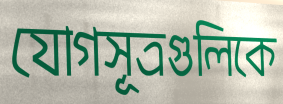
যোগসূত্রগুলিকে